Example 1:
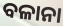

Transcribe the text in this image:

ବଳାନା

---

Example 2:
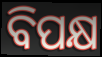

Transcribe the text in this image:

ବିପକ୍ଷ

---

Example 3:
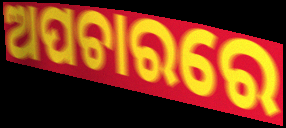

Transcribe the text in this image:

ଅପଚାରରେ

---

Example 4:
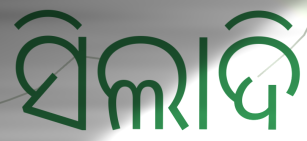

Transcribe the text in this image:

ସିଲାଦି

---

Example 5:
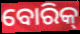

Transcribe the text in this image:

ବୋରିକ୍